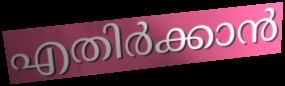
എതിർക്കാൻ